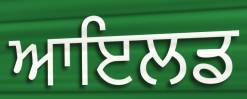
ਆਇਲਡ